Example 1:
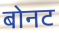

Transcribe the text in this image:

बोनट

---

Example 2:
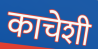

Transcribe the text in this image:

काचेशी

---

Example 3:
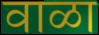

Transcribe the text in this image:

वाळा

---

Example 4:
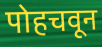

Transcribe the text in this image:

पोहचवून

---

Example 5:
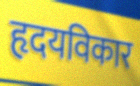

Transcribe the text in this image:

हृदयविकार